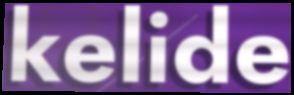
kelide